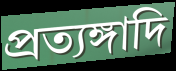
প্রত্যঙ্গাদি